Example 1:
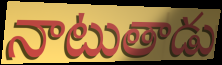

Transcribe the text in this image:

నాటుతాడు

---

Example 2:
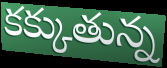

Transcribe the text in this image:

కక్కుతున్న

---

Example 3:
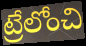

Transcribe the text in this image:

ట్రేలోంచి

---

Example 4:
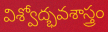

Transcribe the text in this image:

విశ్వోద్భవశాస్త్రం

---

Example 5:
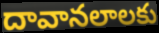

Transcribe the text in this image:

దావానలాలకు